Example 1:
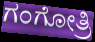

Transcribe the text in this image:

ಗಂಗೋತ್ರಿ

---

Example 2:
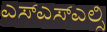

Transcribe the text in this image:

ಎಸ್ಎಸ್ಎಲ್ಸಿ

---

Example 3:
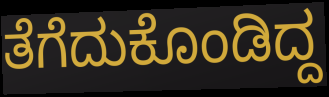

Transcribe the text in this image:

ತೆಗೆದುಕೊಂಡಿದ್ದ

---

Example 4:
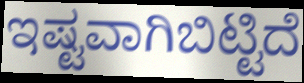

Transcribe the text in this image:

ಇಷ್ಟವಾಗಿಬಿಟ್ಟಿದೆ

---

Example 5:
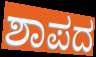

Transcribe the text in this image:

ಶಾಪದ